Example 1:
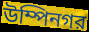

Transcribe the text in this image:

উম্পিনগর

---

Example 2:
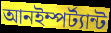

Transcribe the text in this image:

আনইম্পর্ট্যান্ট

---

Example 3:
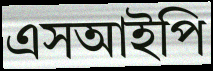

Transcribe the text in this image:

এসআইপি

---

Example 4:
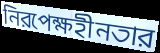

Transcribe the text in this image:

নিরপেক্ষহীনতার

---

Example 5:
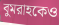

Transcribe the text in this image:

বুমরাহকেও